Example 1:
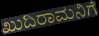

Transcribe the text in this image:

ಖುದಿರಾಮನಿಗೆ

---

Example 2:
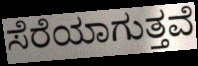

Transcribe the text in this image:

ಸೆರೆಯಾಗುತ್ತವೆ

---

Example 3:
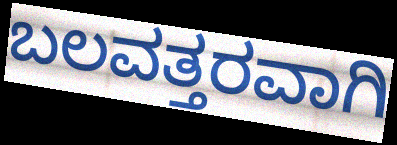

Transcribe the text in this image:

ಬಲವತ್ತರವಾಗಿ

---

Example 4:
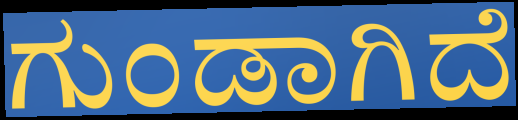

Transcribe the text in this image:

ಗುಂಡಾಗಿದೆ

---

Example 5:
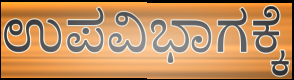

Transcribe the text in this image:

ಉಪವಿಭಾಗಕ್ಕೆ